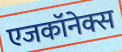
एजकॉनेक्स